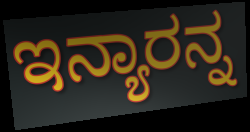
ಇನ್ಯಾರನ್ನ